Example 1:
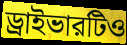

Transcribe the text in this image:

ড্রাইভারটিও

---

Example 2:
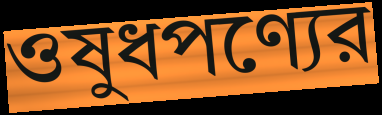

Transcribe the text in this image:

ওষুধপণ্যের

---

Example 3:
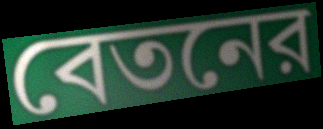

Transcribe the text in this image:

বেতনের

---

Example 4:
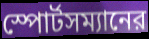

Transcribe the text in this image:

স্পোর্টসম্যানের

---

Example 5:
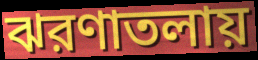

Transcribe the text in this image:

ঝরণাতলায়